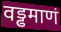
वड्ढमाणं